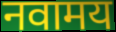
नवामय